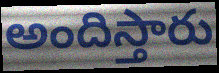
అందిస్తారు